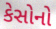
કેસોનો